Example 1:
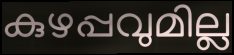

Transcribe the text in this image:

കുഴപ്പവുമില്ല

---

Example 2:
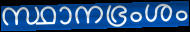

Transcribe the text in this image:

സ്ഥാനഭ്രംശം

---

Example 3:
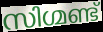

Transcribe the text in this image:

സിഗ്മണ്ട്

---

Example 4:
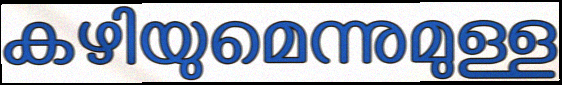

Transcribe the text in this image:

കഴിയുമെന്നുമുള്ള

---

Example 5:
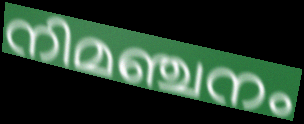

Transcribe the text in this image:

നിമഞ്ചനം